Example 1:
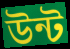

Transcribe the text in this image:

উন্ট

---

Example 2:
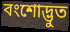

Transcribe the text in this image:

বংশোদ্ভুত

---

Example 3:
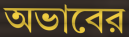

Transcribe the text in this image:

অভাবের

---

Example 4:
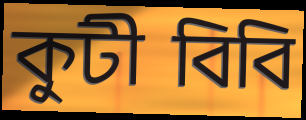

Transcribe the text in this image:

কুটীবিবি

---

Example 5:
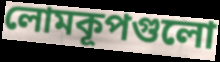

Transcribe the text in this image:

লোমকূপগুলো